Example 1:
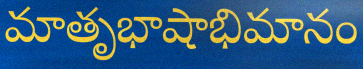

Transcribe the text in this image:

మాతృభాషాభిమానం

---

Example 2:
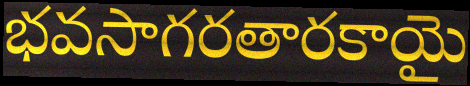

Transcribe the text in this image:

భవసాగరతారకాయై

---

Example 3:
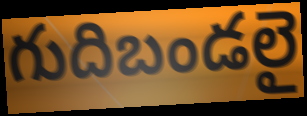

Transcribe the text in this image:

గుదిబండలై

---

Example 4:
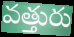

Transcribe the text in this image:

వత్తురు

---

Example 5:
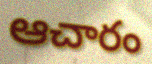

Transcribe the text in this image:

ఆచారం